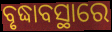
ବୃଦ୍ଧାବସ୍ଥାରେ